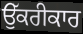
ਉੱਕਰੀਕਾਰ